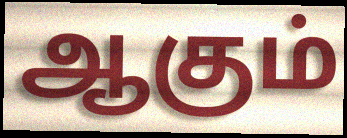
ஆகும்